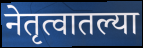
नेतृत्वातल्या